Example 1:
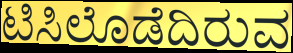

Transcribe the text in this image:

ಟಿಸಿಲೊಡೆದಿರುವ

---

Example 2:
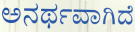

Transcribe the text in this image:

ಅನರ್ಥವಾಗಿದೆ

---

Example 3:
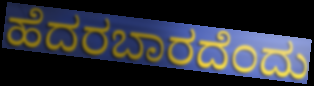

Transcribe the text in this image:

ಹೆದರಬಾರದೆಂದು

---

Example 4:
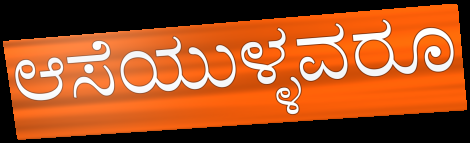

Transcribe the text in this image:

ಆಸೆಯುಳ್ಳವರೂ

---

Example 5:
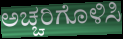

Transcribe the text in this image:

ಅಚ್ಚರಿಗೊಳಿಸಿ